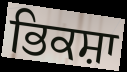
ਭਿਕਸ਼ਾ